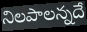
నిలపాలన్నదే